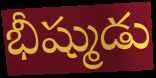
భీష్ముడు